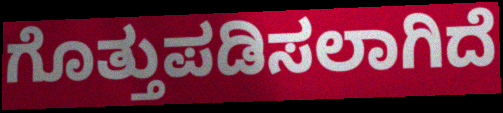
ಗೊತ್ತುಪಡಿಸಲಾಗಿದೆ